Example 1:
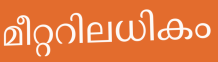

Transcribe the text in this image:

മീറ്ററിലധികം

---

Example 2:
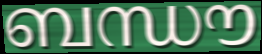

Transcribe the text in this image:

ബന്ധൗ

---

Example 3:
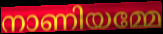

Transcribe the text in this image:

നാണിയമ്മേ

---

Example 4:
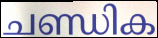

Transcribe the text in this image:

ചണ്ഡിക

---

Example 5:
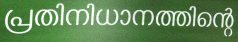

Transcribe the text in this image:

പ്രതിനിധാനത്തിന്റെ